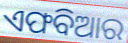
ଏଫବିଆର